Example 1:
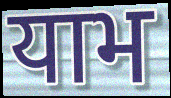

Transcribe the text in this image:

याभ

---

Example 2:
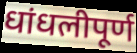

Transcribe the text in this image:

धांधलीपूर्ण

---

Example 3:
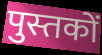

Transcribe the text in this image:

पुस्‍तकों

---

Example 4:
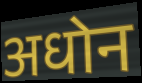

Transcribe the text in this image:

अधोन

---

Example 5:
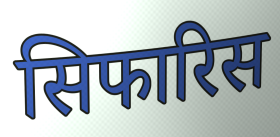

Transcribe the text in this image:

सिफारिस